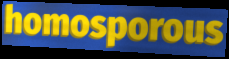
homosporous